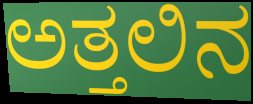
ಅತ್ತಲಿನ